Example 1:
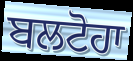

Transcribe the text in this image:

ਬਲਟੋਹਾ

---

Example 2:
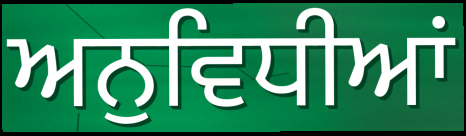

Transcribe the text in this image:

ਅਨੁਵਿਧੀਆਂ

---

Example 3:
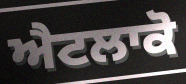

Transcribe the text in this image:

ਐਟਲਾਕੋ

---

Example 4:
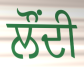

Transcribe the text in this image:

ਲੌਂਦੀ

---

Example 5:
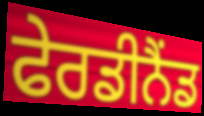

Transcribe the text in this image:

ਫੇਰਡੀਨੈਂਡ